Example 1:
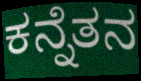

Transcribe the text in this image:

ಕನ್ನೆತನ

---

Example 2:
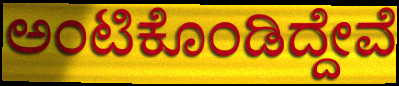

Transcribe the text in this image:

ಅಂಟಿಕೊಂಡಿದ್ದೇವೆ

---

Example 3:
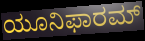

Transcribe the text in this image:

ಯೂನಿಫಾರಮ್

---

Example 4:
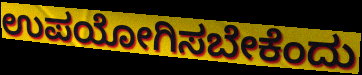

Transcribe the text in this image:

ಉಪಯೋಗಿಸಬೇಕೆಂದು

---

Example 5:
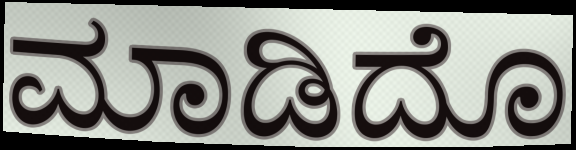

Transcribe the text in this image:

ಮಾಡಿದೊ